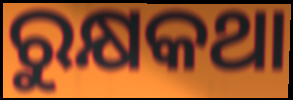
ରୁକ୍ଷକଥା